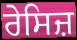
ਰੇਸਿਜ਼